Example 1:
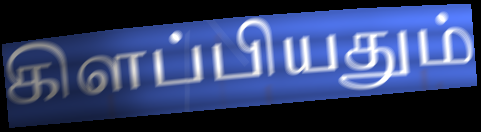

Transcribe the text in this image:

கிளப்பியதும்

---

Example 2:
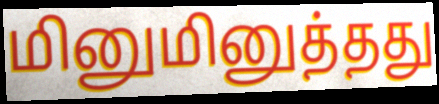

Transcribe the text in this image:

மினுமினுத்தது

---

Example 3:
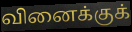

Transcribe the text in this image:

வினைக்குக்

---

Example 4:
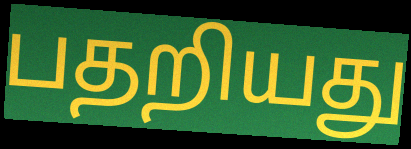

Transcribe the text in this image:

பதறியது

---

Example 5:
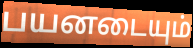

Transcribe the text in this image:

பயனடையும்